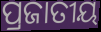
ପ୍ରଜାତୀୟ